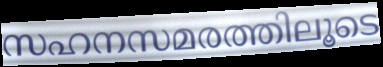
സഹനസമരത്തിലൂടെ